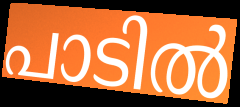
പാടിൽ